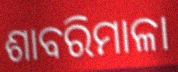
ଶାବରିମାଳା